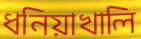
ধনিয়াখালি